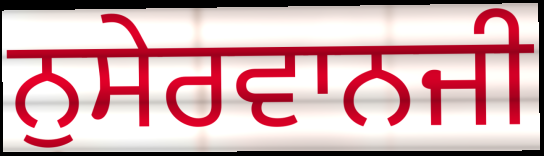
ਨੁਸੇਰਵਾਨਜੀ